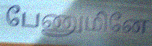
பேணுமினே